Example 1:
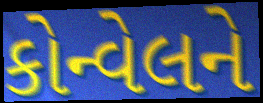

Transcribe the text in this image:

કોન્વેલને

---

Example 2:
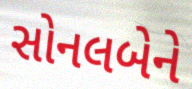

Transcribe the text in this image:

સોનલબેને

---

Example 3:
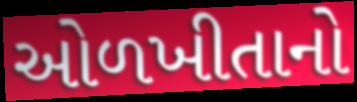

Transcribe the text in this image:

ઓળખીતાનો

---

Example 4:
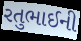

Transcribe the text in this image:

રતુભાઈની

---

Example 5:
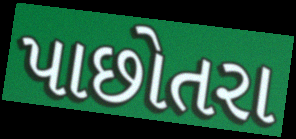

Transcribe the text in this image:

પાછોતરા